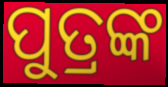
ପୁତ୍ରଙ୍କ